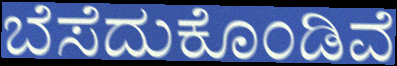
ಬೆಸೆದುಕೊಂಡಿವೆ